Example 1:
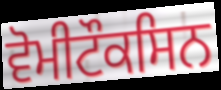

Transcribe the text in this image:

ਵੋਮੀਟੌਕਸਿਨ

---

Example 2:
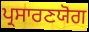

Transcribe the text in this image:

ਪ੍ਰਸਾਰਣਯੋਗ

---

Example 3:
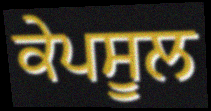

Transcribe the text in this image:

ਕੇਪਸੂਲ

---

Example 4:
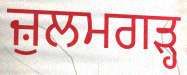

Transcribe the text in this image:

ਜ਼ੁਲਮਗੜ੍ਹ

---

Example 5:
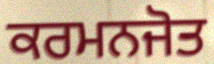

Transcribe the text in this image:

ਕਰਮਨਜੋਤ